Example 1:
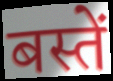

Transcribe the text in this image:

बस्तें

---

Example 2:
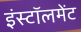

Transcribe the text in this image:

इंस्टॉलमेंट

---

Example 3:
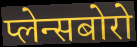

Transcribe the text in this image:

प्लेन्सबोरो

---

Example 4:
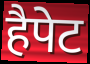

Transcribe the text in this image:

हैपेट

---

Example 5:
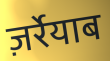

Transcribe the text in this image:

ज़र्रेयाब